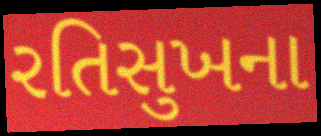
રતિસુખના